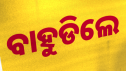
ବାହୁଡିଲେ